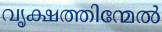
വൃക്ഷത്തിന്മേൽ